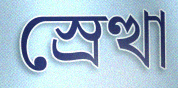
স্রেত্থা